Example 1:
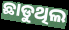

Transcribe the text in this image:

ଛାଡୁଥିଲ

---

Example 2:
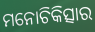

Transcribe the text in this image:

ମନୋଚିକିତ୍ସାର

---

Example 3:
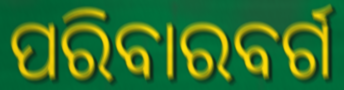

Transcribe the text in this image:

ପରିବାରବର୍ଗ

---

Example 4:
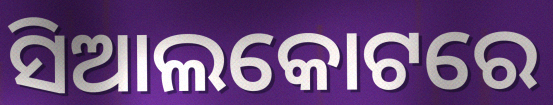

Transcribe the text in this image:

ସିଆଲକୋଟରେ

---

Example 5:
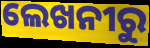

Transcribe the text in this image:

ଲେଖନୀରୁ